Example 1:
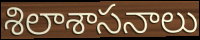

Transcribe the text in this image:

శిలాశాసనాలు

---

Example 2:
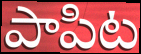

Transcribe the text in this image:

పాపిట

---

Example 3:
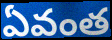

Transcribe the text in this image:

ఏవంత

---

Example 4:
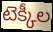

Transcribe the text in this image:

టెక్కీల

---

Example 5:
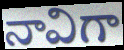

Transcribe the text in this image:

నావిగా